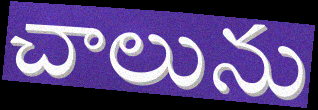
చాలును